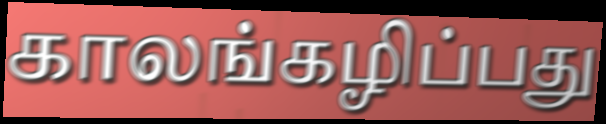
காலங்கழிப்பது